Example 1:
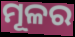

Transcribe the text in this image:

ମୂଳର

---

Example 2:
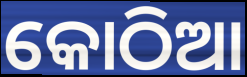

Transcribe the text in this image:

କୋଠିଆ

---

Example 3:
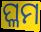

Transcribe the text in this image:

ପ୍ଳମ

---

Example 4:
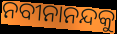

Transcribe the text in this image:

ନବୀନାନନ୍ଦକୁ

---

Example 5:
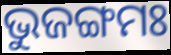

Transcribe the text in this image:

ଭୁଜଙ୍ଗମଃ